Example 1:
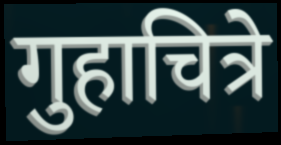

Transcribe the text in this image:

गुहाचित्रे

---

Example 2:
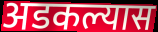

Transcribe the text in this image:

अडकल्यास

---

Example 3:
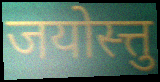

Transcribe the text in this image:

जयोस्त्तु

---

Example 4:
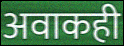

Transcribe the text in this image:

अवाकही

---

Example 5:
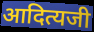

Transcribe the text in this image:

आदित्यजी